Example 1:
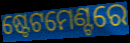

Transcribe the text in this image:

ଷ୍ଟେଟମେଣ୍ଟରେ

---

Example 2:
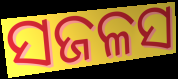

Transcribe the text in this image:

ସଜଳସ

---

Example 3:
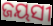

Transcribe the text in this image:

ଜୟସୀ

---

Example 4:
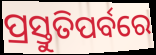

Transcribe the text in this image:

ପ୍ରସ୍ତୁତିପର୍ବରେ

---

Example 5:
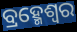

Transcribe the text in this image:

ବ୍ରହ୍ମେଶ୍ଵର